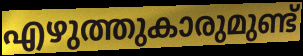
എഴുത്തുകാരുമുണ്ട്